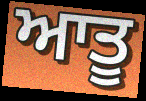
ਆਤੂ